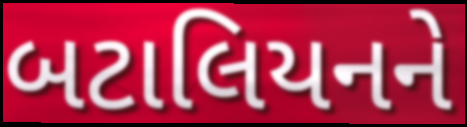
બટાલિયનને